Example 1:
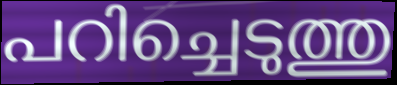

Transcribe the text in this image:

പറിച്ചെടുത്തു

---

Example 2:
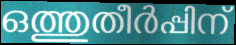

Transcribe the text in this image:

ഒത്തുതീർപ്പിന്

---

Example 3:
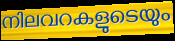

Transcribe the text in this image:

നിലവറകളുടെയും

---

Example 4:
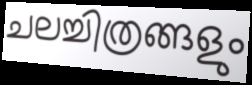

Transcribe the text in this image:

ചലച്ചിത്രങ്ങളും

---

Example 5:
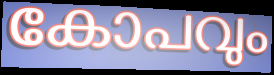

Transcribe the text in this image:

കോപവും